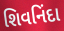
શિવનિંદા